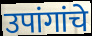
उपांगांचे